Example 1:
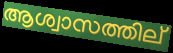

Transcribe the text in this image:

ആശ്വാസത്തില്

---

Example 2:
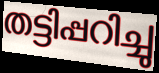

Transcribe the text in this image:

തട്ടിപ്പറിച്ചു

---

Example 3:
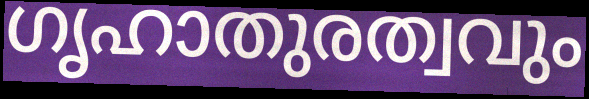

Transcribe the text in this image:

ഗൃഹാതുരത്വവും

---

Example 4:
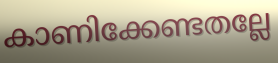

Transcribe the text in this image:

കാണിക്കേണ്ടതല്ലേ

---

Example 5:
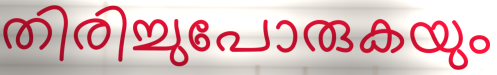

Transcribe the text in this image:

തിരിച്ചുപോരുകയും